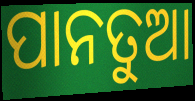
ପାନତୁଆ